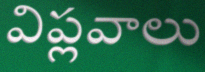
విప్లవాలు